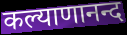
कल्याणानन्द